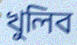
খুলিব